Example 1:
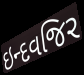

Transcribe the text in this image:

ઇન્દવજિર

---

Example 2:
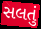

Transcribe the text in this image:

સલતું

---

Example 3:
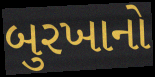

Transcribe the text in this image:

બુરખાનો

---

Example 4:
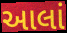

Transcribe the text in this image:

આલાં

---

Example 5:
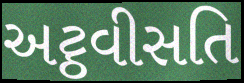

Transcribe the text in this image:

અટ્ઠવીસતિ